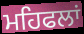
ਮਹਿਫਲਾਂ